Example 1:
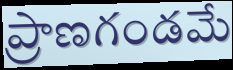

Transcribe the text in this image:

ప్రాణగండమే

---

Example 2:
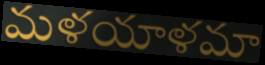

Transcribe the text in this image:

మళయాళమా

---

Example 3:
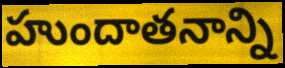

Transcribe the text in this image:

హుందాతనాన్ని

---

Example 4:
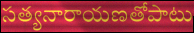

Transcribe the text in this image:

సత్యనారాయణతోపాటు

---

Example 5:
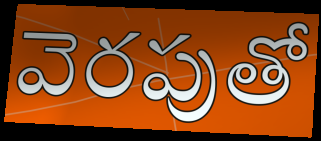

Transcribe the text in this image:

వెరపుతో